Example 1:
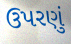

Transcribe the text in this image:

ઉપરણું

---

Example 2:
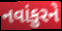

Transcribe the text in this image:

નવાંકુરને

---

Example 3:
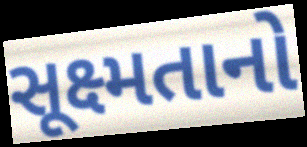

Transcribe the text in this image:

સૂક્ષ્મતાનો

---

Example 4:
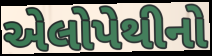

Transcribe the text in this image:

એલોપેથીનો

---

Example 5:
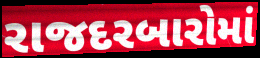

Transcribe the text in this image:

રાજદરબારોમાં